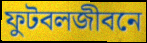
ফুটবলজীবনে